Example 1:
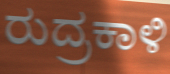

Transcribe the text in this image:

ರುದ್ರಕಾಳಿ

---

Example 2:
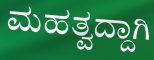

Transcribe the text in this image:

ಮಹತ್ವದ್ದಾಗಿ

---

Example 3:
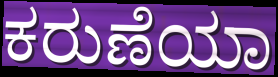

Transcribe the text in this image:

ಕರುಣೆಯಾ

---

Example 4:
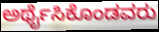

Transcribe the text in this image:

ಅರ್ಥೈಸಿಕೊಂಡವರು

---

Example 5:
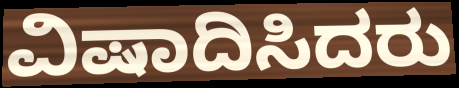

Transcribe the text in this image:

ವಿಷಾದಿಸಿದರು